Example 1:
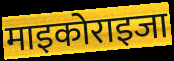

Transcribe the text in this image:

माइकोराइजा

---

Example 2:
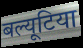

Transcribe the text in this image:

बल्यूटिया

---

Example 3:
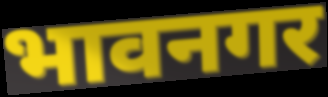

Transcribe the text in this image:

भावनगर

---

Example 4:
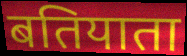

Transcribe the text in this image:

बतियाता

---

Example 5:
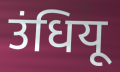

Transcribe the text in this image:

उंधियू